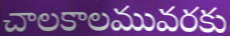
చాలకాలమువరకు